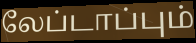
லேப்டாப்பும்